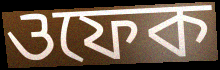
ওফেক